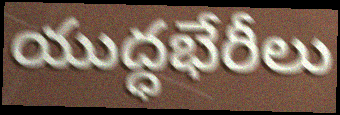
యుద్ధభేరీలు